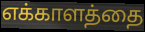
எக்காளத்தை